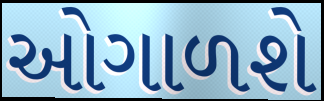
ઓગાળશે